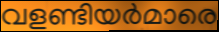
വളണ്ടിയർമാരെ